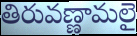
తిరువణ్ణామలై